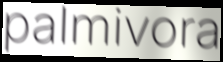
palmivora